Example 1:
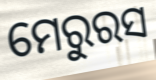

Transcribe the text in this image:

ମେରୁରସ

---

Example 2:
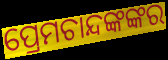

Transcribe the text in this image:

ପ୍ରେମଚାନ୍ଦଙ୍କଙ୍କର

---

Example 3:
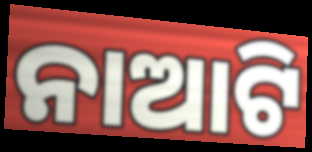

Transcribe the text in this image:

ନାଆଟି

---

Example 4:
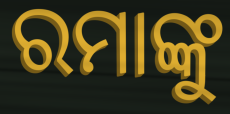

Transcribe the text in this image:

ରମାଙ୍କୁ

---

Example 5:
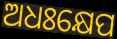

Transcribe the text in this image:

ଅଧଃକ୍ଷେପ